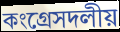
কংগ্রেসদলীয়